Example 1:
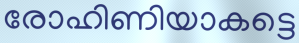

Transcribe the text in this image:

രോഹിണിയാകട്ടെ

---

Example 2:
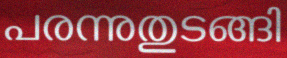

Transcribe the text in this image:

പരന്നുതുടങ്ങി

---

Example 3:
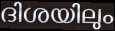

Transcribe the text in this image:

ദിശയിലും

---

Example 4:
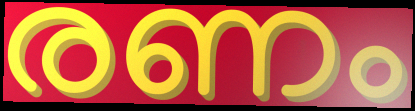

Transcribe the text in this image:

രണം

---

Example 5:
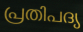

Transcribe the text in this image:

പ്രതിപദ്യ